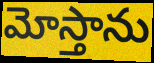
మోస్తాను